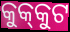
କୁକ୍‍କୁଟ